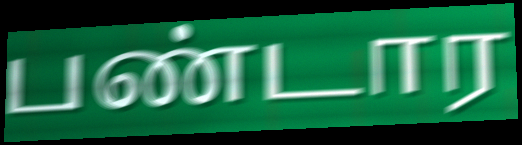
பண்டார